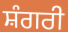
ਸ਼ੰਗਰੀ